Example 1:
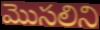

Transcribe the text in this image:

మొసలిని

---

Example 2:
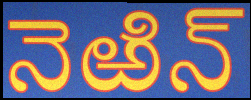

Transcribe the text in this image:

నెఱిన్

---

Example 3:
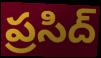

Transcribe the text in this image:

ప్రసిద్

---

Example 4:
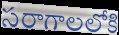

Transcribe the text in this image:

సరాగాలలోకి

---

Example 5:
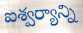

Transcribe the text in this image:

ఐశ్వర్యాన్ని